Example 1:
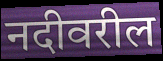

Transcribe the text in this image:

नदीवरील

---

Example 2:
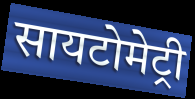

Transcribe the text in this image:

सायटोमेट्री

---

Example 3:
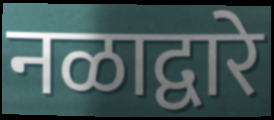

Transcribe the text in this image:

नळाद्वारे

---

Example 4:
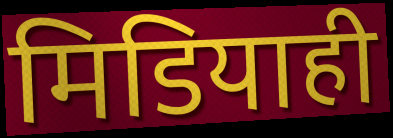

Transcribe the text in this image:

मिडियाही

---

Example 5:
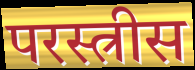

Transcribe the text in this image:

परस्त्रीस